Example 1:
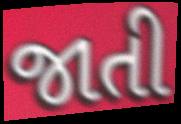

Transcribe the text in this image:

જાતી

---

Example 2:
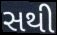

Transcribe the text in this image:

સથી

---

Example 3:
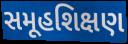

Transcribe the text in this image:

સમૂહશિક્ષણ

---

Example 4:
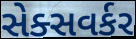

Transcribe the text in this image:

સેક્સવર્કર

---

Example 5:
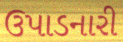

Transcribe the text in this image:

ઉપાડનારી